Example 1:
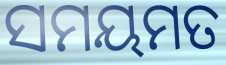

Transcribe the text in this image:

ସମୟମତ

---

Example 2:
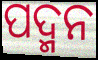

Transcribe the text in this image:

ପଦ୍ମନ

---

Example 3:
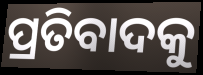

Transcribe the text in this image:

ପ୍ରତିବାଦକୁ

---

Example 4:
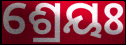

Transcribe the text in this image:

ଶ୍ରେୟଃ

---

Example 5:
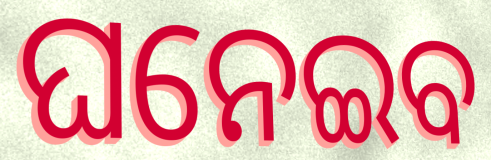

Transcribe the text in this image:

ଘନେଇବ